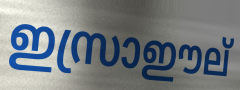
ഇസ്രാഈല്